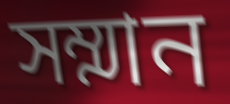
সম্মান